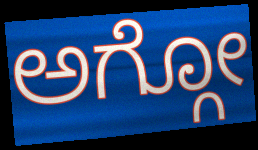
ಅಗ್ಗೋ